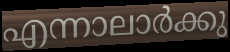
എന്നാലാർക്കു